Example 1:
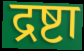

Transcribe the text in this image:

द्रष्टा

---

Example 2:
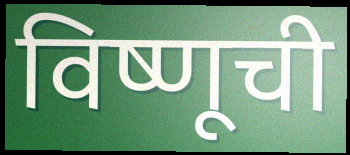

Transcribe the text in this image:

विष्णूची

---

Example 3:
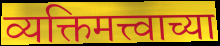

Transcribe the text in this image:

व्यक्तिमत्त्वाच्या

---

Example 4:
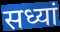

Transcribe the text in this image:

सध्यां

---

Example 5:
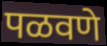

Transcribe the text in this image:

पळवणे